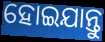
ହୋଇଯାନ୍ତୁ